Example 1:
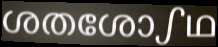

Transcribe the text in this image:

ശതശോഽഥ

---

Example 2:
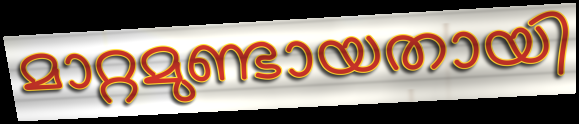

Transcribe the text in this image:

മാറ്റമുണ്ടായതായി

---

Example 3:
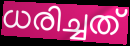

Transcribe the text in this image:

ധരിച്ചത്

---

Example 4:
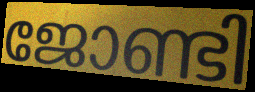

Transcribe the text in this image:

ജോണ്ടി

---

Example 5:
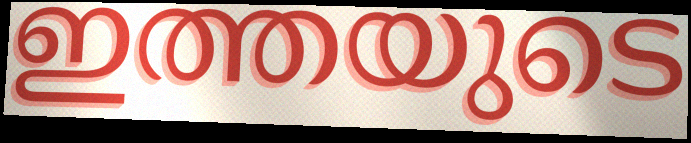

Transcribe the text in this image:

ഇത്തയുടെ